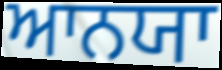
ਆਨਯਾ